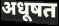
अधूषत